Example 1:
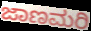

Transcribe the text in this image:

ಜಾಣಮರಿ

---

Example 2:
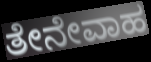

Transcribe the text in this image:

ತೇನೇವಾಹ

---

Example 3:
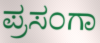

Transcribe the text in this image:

ಪ್ರಸಂಗಾ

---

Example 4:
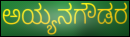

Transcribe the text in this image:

ಅಯ್ಯನಗೌಡರ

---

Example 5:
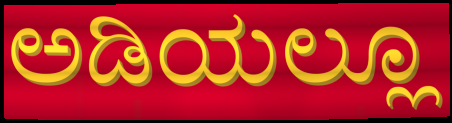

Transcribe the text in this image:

ಅಡಿಯಲ್ಲೂ